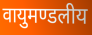
वायुमण्डलीय